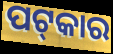
ପଟ୍‌କାର